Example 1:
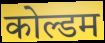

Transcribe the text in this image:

कोल्डम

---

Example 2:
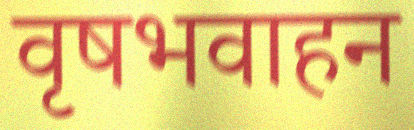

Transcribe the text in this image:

वृषभवाहन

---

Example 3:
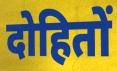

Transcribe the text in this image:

दोहितों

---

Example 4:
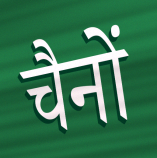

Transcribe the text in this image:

चैनों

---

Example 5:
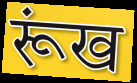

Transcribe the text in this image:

रूंख